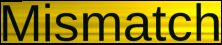
Mismatch